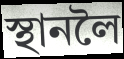
স্থানলৈ